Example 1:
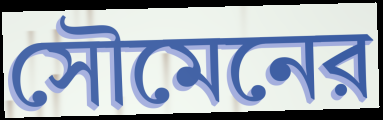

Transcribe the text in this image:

সৌমেনের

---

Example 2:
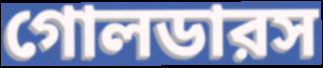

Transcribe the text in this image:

গোলডারস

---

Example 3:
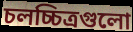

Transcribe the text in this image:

চলচ্চিত্রগুলো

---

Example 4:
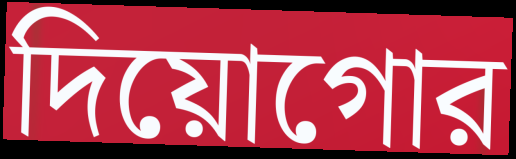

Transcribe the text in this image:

দিয়োগোর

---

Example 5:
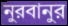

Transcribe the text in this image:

নুরবানুর